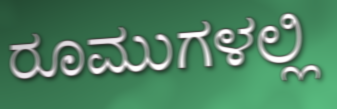
ರೂಮುಗಳಲ್ಲಿ